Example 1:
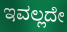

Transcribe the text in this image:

ಇವಲ್ಲದೇ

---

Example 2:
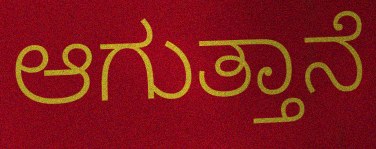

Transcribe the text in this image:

ಆಗುತ್ತಾನೆ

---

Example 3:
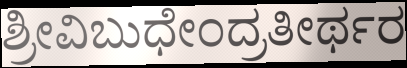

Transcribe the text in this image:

ಶ್ರೀವಿಬುಧೇಂದ್ರತೀರ್ಥರ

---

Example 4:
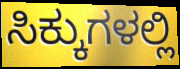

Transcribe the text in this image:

ಸಿಕ್ಕುಗಳಲ್ಲಿ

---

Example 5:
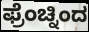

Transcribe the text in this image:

ಫ್ರೆಂಚ್ನಿಂದ